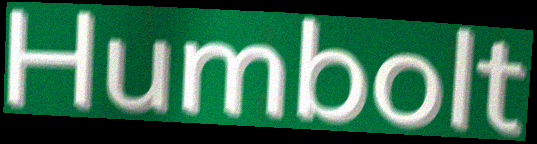
Humbolt